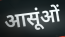
आसूंओं